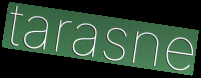
tarasne